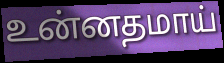
உன்னதமாய்